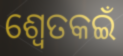
ଶ୍ୱେତକଇଁ